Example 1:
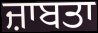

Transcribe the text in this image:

ਜ਼ਾਬਤਾ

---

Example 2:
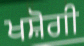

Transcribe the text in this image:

ਖਸ਼ੋਗੀ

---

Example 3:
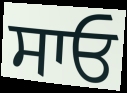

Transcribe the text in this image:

ਸਾਓ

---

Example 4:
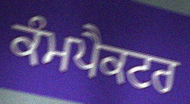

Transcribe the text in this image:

ਕੰਮਪੈਕਟਰ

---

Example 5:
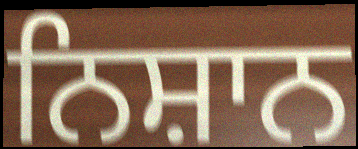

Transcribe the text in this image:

ਨਿਸ਼ਾਨ